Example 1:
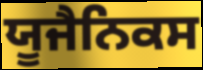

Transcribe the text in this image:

ਯੂਜੈਨਿਕਸ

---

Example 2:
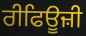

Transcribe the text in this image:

ਰੀਫਿਊਜ਼ੀ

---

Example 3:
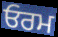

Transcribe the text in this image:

ਓਰਮ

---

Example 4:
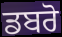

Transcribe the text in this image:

ਡਬਰੋ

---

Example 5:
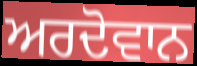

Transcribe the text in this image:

ਅਰਦੋਵਾਨ